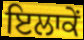
ਇਲਾਕੇਂ